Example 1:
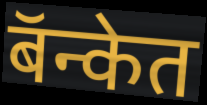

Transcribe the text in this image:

बॅन्केत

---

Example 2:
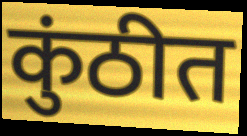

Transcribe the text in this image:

कुंठीत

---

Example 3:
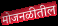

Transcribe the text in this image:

मोजनळीतील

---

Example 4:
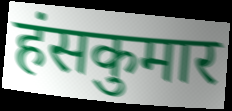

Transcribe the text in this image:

हंसकुमार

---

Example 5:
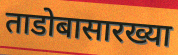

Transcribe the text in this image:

ताडोबासारख्या